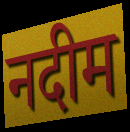
नदीम